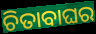
ଚିତାବାଘର